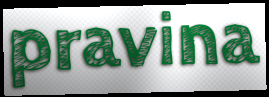
pravina